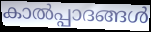
കാൽപ്പാദങ്ങൾ